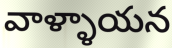
వాళ్ళాయన